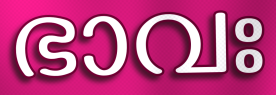
ഭാവഃ